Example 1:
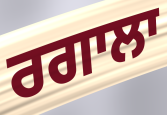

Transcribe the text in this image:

ਰਗਾਲਾ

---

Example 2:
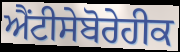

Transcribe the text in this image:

ਐਂਟੀਸੇਬੋਰੇਹੀਕ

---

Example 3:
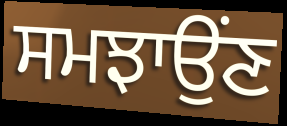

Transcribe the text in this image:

ਸਮਝਾਉਂਣ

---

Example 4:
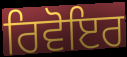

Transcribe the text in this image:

ਰਿਵੋਇਰ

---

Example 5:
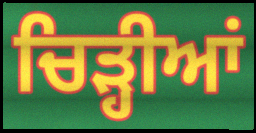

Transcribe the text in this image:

ਚਿੜ੍ਹੀਆਂ